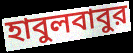
হাবুলবাবুর